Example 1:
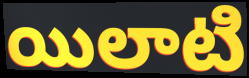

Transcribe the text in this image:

యిలాటి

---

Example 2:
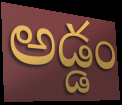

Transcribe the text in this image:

అడ్డం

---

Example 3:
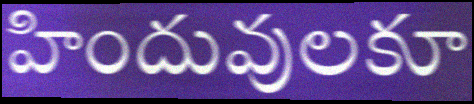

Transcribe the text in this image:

హిందువులకూ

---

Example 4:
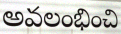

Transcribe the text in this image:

అవలంభించి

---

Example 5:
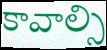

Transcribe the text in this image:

కావాల్సి